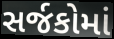
સર્જકોમાં